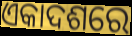
ଏକାଦଶରେ